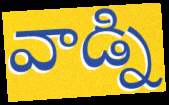
వాడ్ని